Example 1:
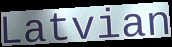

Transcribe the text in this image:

Latvian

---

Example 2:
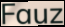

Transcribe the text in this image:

Fauz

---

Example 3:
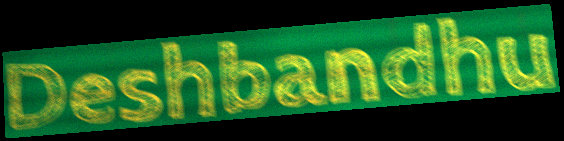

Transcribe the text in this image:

Deshbandhu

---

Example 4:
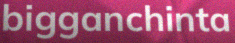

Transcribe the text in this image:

bigganchinta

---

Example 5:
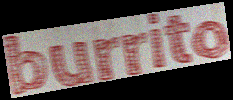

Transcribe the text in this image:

burrito